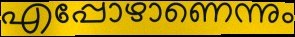
എപ്പോഴാണെന്നും